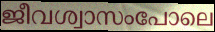
ജീവശ്വാസംപോലെ